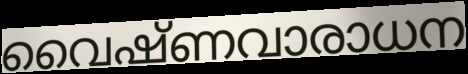
വൈഷ്ണവാരാധന